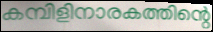
കമ്പിളിനാരകത്തിന്റെ